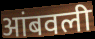
आंबवली